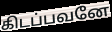
கிடப்பவனே